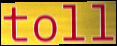
toll